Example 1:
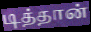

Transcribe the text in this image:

டித்தான்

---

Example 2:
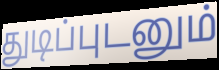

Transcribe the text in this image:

துடிப்புடனும்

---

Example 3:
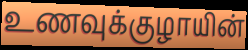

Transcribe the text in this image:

உணவுக்குழாயின்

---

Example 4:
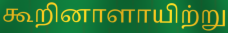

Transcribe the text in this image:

கூறினாளாயிற்று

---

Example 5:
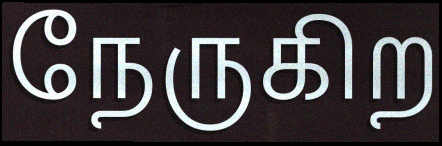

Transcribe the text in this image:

நேருகிற